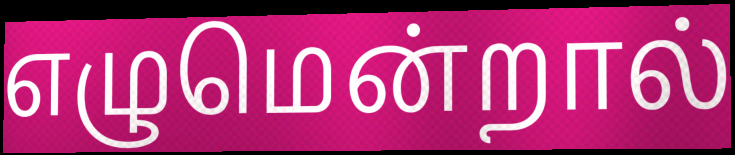
எழுமென்றால்